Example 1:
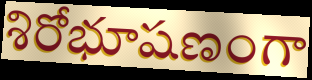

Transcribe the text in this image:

శిరోభూషణంగా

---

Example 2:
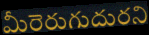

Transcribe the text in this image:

మీరెరుగుదురని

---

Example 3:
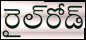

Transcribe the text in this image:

రైల్‌రోడ్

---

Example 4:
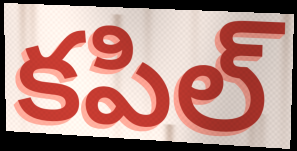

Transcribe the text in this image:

కపిల్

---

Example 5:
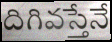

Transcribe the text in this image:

దిగివస్తేనే